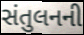
સંતુલનની